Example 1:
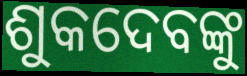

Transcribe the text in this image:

ଶୁକଦେବଙ୍କୁ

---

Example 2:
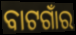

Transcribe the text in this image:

ବାଟଗାଁର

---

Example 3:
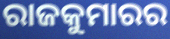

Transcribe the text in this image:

ରାଜକୁମାରର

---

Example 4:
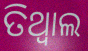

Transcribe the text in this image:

ତିଥ୍ୱାଲ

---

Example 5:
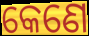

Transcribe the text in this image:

କେଣେ